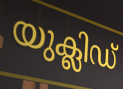
യുക്ലിഡ്